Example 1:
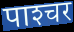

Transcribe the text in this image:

पाश्चर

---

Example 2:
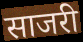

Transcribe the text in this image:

साजरी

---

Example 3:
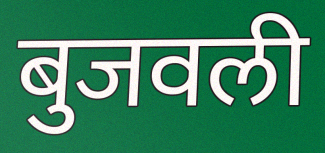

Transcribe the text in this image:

बुजवली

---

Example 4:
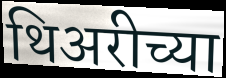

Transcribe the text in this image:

थिअरीच्या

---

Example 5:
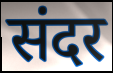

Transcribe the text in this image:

संदर